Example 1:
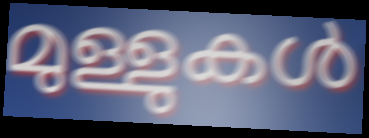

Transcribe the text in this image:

മുള്ളുകൾ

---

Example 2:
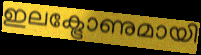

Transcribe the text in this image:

ഇലക്ട്രോണുമായി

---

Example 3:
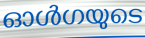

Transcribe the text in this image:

ഓൾഗയുടെ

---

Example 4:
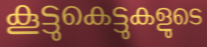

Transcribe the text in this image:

കൂട്ടുകെട്ടുകളുടെ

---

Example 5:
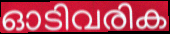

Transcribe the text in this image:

ഓടിവരിക